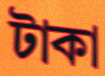
টাকা